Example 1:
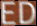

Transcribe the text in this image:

ED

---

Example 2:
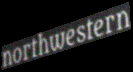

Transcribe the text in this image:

northwestern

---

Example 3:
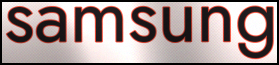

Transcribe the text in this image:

samsung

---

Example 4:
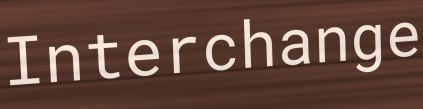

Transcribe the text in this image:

Interchange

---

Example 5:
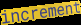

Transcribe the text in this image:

increment